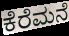
ಕೆರೆಮನೆ